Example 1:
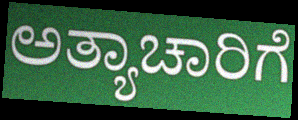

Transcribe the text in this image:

ಅತ್ಯಾಚಾರಿಗೆ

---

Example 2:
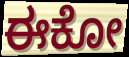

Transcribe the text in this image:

ಈಕೋ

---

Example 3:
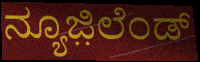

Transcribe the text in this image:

ನ್ಯೂಜ಼ಿಲೆಂಡ್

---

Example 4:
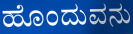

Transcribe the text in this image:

ಹೊಂದುವನು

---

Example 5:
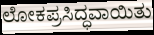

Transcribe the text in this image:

ಲೋಕಪ್ರಸಿದ್ಧವಾಯಿತು